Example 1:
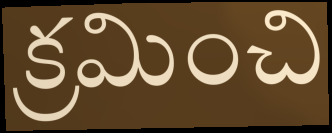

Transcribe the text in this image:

క్రమించి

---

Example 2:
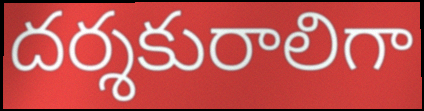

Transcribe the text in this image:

దర్శకురాలిగా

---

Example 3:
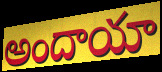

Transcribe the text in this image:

అందాయా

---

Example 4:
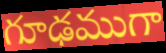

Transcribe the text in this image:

గూఢముగా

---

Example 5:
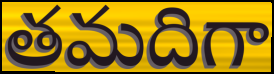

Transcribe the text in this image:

తమదిగా